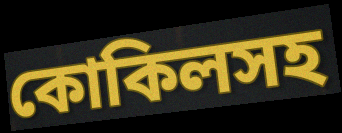
কোকিলসহ